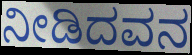
ನೀಡಿದವನ